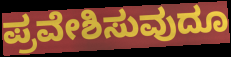
ಪ್ರವೇಶಿಸುವುದೂ